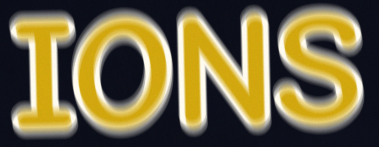
IONS